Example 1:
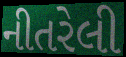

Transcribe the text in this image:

નીતરેલી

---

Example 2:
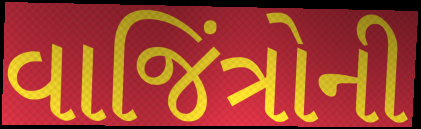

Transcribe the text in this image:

વાજિંત્રોની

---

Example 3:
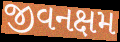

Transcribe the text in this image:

જીવનક્ષમ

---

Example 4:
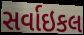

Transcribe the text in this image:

સર્વાઇકલ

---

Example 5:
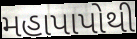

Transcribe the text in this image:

મહાપાપોથી